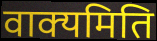
वाक्यमिति